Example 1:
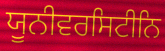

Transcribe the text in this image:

ਯੂਨੀਵਰਸਿਟੀਨਿ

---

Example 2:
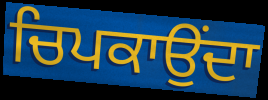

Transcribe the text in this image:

ਚਿਪਕਾਉਂਦਾ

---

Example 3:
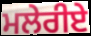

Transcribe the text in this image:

ਮਲੇਰੀਏ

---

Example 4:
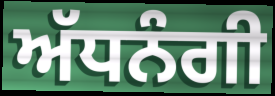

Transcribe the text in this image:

ਅੱਧਨੰਗੀ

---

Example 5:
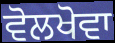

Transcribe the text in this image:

ਵੋਲਖੋਵਾ